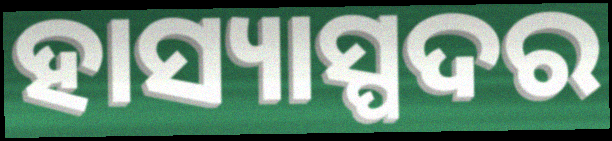
ହାସ୍ୟାସ୍ପଦର